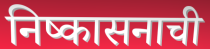
निष्कासनाची